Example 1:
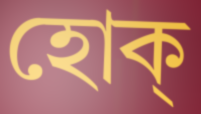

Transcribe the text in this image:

হোক্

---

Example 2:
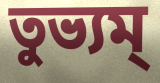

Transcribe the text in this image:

তুভ্যম্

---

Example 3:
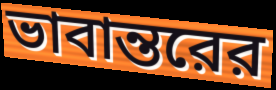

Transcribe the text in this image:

ভাবান্তরের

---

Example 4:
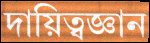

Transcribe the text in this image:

দায়িত্বজ্ঞান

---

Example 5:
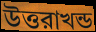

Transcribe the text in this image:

উত্তরাখন্ড